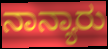
ನಾನ್ಯಾರು